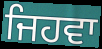
ਜਿਹਵਾ